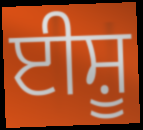
ਈਸ਼ੂ